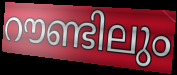
റൗണ്ടിലും